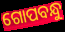
ଗୋପବନ୍ଧୁ